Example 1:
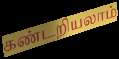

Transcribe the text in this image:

கண்டறியலாம்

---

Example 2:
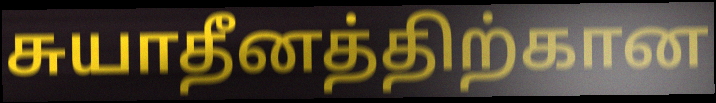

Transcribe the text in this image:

சுயாதீனத்திற்கான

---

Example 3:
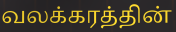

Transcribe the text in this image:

வலக்கரத்தின்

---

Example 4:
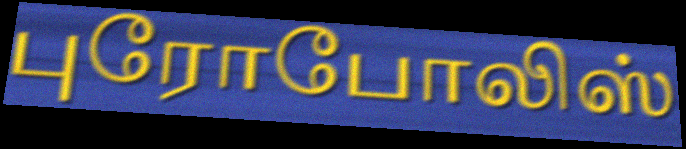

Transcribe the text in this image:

புரோபோலிஸ்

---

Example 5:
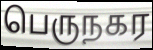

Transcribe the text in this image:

பெருநகர